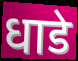
धाडे